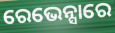
ରେଭେନ୍ସାରେ